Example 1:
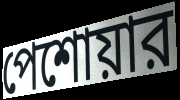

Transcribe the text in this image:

পেশোয়ার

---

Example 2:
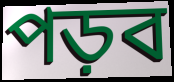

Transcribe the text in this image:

পড়ব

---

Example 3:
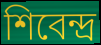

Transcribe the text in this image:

শিবেন্দ্র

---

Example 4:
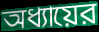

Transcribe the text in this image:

অধ্যায়ের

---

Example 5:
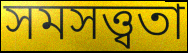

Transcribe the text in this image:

সমসত্ত্বতা